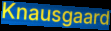
Knausgaard